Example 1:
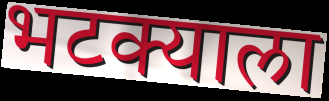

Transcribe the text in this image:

भटक्याला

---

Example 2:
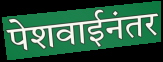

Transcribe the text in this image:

पेशवाईनंतर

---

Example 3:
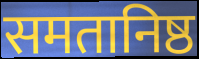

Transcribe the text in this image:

समतानिष्ठ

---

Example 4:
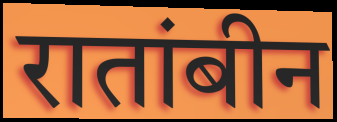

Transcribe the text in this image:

रातांबीन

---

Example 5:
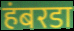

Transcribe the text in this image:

हंबरडा